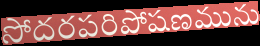
సోదరపరిపోషణమును